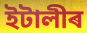
ইটালীৰ